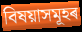
বিষয়াসমূহৰ